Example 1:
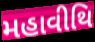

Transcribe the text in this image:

મહાવીથિ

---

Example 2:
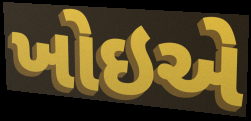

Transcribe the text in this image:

ખોઇએ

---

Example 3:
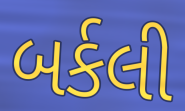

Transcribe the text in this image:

બર્કલી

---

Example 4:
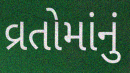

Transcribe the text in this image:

વ્રતોમાંનું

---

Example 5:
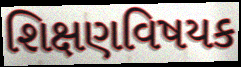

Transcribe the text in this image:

શિક્ષણવિષયક